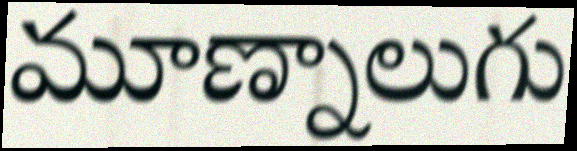
మూణ్నాలుగు